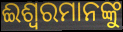
ଈଶ୍ୱରମାନଙ୍କୁ